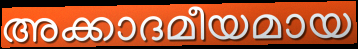
അക്കാദമീയമായ